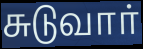
சுடுவார்